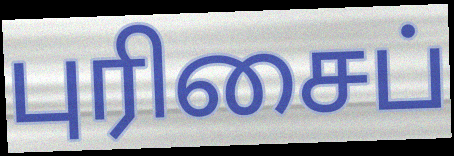
புரிசைப்